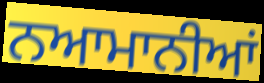
ਨਆਮਾਨੀਆਂ